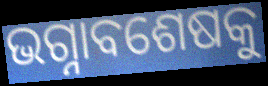
ଭଗ୍ନାବଶେଷକୁ